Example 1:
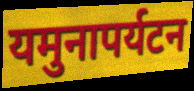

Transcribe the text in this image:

यमुनापर्यटन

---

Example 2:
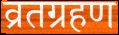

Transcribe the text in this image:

व्रतग्रहण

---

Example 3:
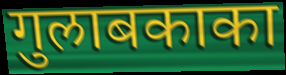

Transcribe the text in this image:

गुलाबकाका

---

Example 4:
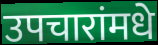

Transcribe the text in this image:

उपचारांमधे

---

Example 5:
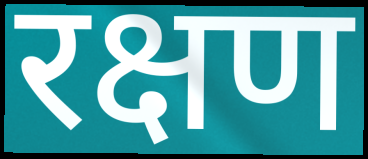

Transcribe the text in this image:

रक्षण